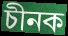
চীনক